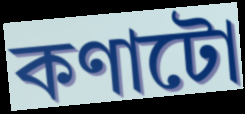
কণাটো